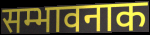
सम्भावनाक